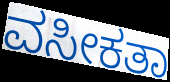
ವಸೀಕತಾ